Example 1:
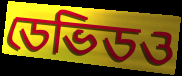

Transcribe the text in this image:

ডেভিডও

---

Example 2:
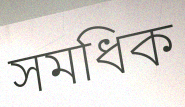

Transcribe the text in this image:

সমধিক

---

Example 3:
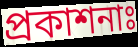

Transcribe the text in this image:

প্রকাশনাঃ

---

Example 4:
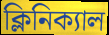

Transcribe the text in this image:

ক্লিনিক্যাল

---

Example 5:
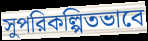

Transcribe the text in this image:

সুপরিকল্পিতভাবে